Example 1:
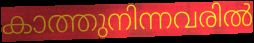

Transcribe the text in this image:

കാത്തുനിന്നവരിൽ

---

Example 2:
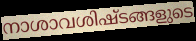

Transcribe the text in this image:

നാശാവശിഷ്ടങ്ങളുടെ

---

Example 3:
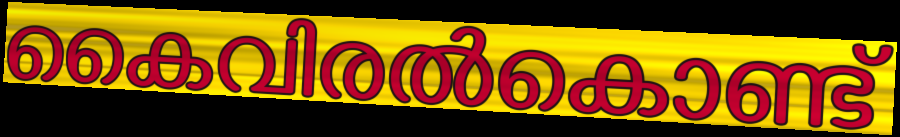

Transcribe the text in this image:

കൈവിരൽകൊണ്ട്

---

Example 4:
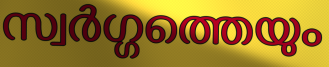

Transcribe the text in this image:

സ്വർഗ്ഗത്തെയും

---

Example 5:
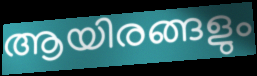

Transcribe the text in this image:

ആയിരങ്ങളും